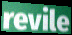
revile